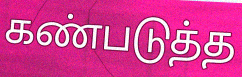
கண்படுத்த